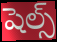
షెల్స్